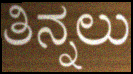
ತಿನ್ನಲು